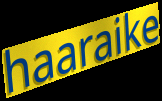
haaraike